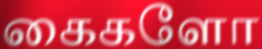
கைகளோ